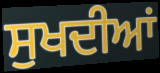
ਸੁਖਦੀਆਂ